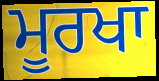
ਮੂਰਖਾ